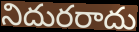
నిదురరాదు